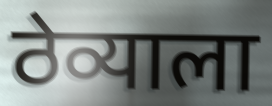
ठेव्याला